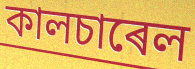
কালচাৰেল